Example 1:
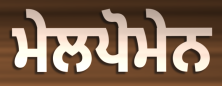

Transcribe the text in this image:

ਮੇਲਪੋਮੇਨ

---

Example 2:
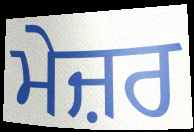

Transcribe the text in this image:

ਮੇਜ਼ਰ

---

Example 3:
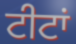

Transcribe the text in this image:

ਟੀਟਾਂ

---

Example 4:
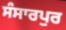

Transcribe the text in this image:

ਸੰਸਾਰਪੁਰ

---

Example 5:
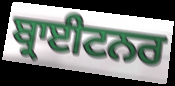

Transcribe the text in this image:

ਬ੍ਰਾਈਟਨਰ